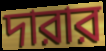
দারার